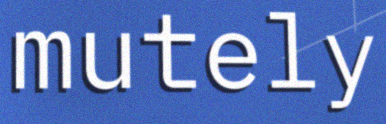
mutely